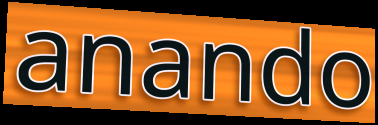
anando